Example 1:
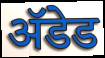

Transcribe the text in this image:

ॲडेड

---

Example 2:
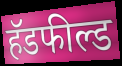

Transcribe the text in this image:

हॅडफील्ड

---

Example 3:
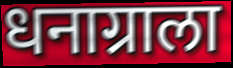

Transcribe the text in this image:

धनाग्राला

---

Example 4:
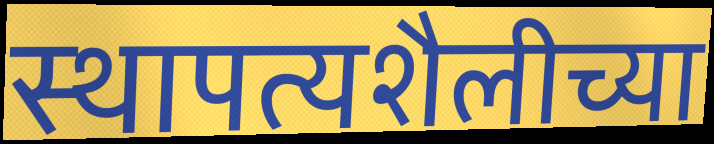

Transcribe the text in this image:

स्थापत्यशैलीच्या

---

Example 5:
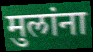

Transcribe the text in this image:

मुलांना